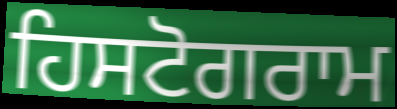
ਹਿਸਟੋਗਰਾਮ